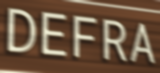
DEFRA